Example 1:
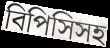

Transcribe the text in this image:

বিপিসিসহ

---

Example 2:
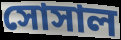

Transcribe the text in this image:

সোসাল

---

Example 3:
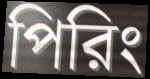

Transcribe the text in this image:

পিরিং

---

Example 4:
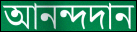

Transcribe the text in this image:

আনন্দদান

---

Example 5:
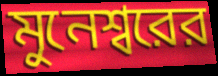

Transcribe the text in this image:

মুনেশ্বরের